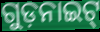
ଗୁଡ଼ନାଇଟ୍